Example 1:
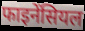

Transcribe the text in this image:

फाइनेंसियल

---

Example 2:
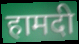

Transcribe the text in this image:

हामदी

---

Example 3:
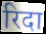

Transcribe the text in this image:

रिदा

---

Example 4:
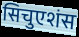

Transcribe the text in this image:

सिचुएशंस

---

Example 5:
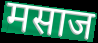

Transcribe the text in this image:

मसाज